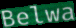
Belwa